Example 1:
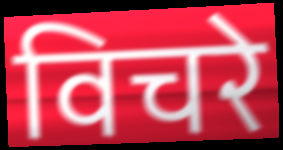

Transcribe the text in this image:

विचरे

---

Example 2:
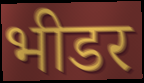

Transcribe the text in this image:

भीडर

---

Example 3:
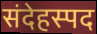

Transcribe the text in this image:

संदेहस्पद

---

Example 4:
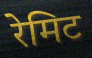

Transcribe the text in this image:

रेमिट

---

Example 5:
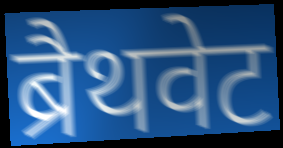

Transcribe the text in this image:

ब्रैथवेट